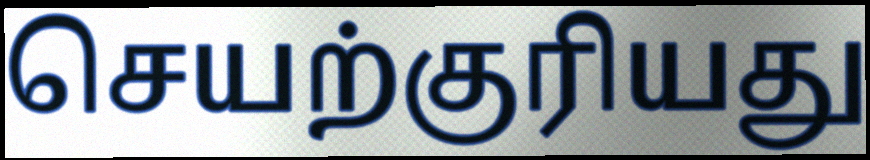
செயற்குரியது